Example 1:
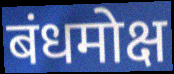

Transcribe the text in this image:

बंधमोक्ष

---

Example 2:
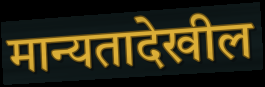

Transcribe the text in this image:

मान्यतादेखील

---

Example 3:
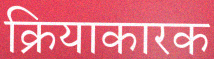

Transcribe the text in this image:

क्रियाकारक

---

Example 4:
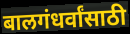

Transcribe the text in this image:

बालगंधर्वांसाठी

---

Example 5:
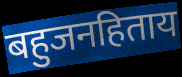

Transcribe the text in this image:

बहुजनहिताय